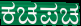
ಕಚಪಚ